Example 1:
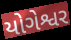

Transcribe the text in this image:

યોગેશ્વર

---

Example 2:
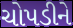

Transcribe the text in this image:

ચોપડીને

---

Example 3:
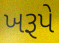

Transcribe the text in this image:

ખરૂપે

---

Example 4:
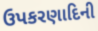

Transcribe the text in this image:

ઉપકરણાદિની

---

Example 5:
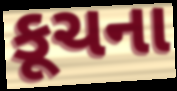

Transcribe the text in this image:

કૂચના